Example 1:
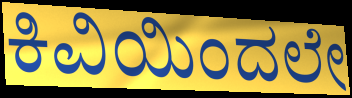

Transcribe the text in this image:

ಕಿವಿಯಿಂದಲೇ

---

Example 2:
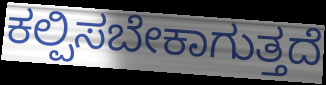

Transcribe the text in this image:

ಕಲ್ಪಿಸಬೇಕಾಗುತ್ತದೆ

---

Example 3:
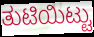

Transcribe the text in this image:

ತುಟಿಯಿಟ್ಟು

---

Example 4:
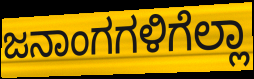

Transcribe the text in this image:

ಜನಾಂಗಗಳಿಗೆಲ್ಲಾ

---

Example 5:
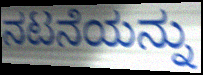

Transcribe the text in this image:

ನಟನೆಯನ್ನು